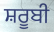
ਸ਼ਰੂਬੀ